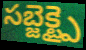
సబ్జెక్ట్పై